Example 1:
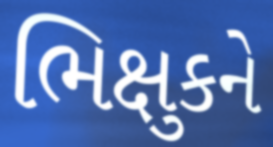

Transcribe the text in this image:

ભિક્ષુકને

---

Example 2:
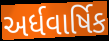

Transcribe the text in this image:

અર્ધવાર્ષિક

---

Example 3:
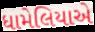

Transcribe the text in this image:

ધામેલિયાએ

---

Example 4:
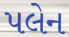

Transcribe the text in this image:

પલેન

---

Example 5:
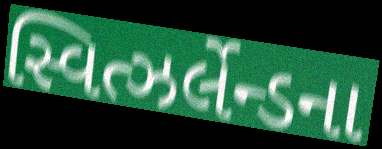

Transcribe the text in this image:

સ્વિત્ઝર્લેન્ડના